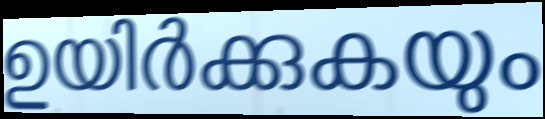
ഉയിർക്കുകയും